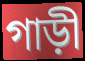
গাড়ী